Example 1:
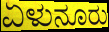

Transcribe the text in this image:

ಏಳುನೂರು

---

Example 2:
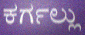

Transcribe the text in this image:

ಕರ್ಗಲ್ಲು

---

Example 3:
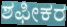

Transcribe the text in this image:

ಶಫೀಕರ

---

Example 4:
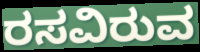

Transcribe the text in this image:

ರಸವಿರುವ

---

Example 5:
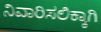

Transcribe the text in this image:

ನಿವಾರಿಸಲಿಕ್ಕಾಗಿ